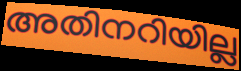
അതിനറിയില്ല